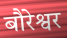
बौरेश्वर